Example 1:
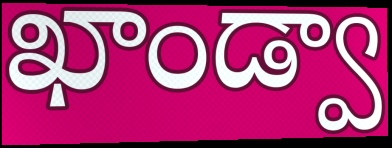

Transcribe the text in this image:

ఖాండ్వా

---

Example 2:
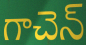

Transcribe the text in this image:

గాచెన్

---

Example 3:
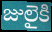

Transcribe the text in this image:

జులైకి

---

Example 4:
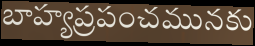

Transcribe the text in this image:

బాహ్యప్రపంచమునకు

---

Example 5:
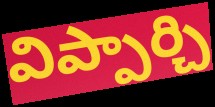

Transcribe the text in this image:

విప్పార్చి